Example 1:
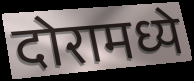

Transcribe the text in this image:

दोरामध्ये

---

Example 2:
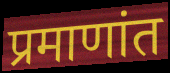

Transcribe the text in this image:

प्रमाणांत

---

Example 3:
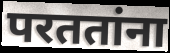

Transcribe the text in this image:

परततांना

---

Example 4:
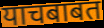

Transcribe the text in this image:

याचबाबत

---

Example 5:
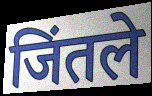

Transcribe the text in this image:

जिंतले